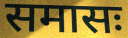
समासः